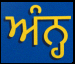
ਅੰਨ੍ਹ